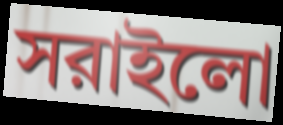
সরাইলো